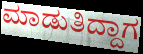
ಮಾಡುತಿದ್ದಾಗ